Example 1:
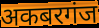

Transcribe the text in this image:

अकबरगंज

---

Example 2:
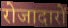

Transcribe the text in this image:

रोजादारों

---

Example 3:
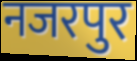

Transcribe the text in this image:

नजरपुर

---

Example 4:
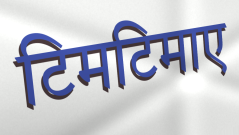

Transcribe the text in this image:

टिमटिमाए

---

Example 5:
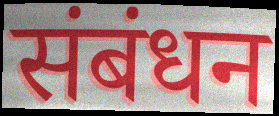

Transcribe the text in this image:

संबंधन